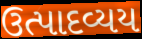
ઉત્પાદવ્યય